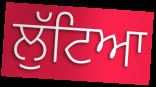
ਲੁੱਟਿਆ